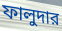
ফালুদার